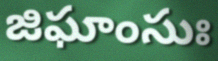
జిఘాంసుః